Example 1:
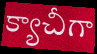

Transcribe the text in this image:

క్యాచీగా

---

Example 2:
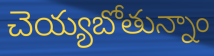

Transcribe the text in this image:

చెయ్యబోతున్నాం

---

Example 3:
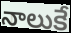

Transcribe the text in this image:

నాలుకే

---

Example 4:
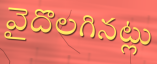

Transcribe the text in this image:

వైదొలగినట్లు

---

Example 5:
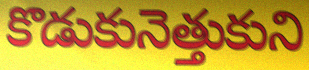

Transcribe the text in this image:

కొడుకునెత్తుకుని